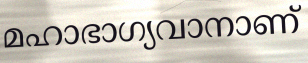
മഹാഭാഗ്യവാനാണ്